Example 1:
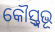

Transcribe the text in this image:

କୌସ୍ତ୍ୱଭୂ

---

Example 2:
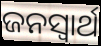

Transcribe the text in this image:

ଜନସ୍ଵାର୍ଥ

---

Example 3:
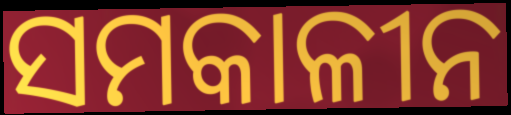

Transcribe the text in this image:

ସମକାଳୀନ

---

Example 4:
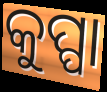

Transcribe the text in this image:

କୁପ୍ପା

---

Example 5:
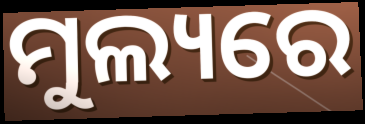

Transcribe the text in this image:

ମୁଲ୍ୟରେ